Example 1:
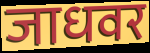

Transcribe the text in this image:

जाधवर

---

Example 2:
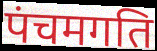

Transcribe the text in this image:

पंचमगति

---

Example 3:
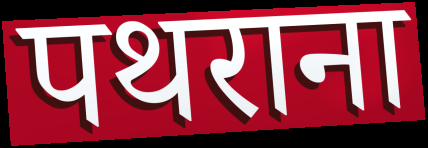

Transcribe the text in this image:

पथराना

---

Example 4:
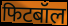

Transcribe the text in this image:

फिटबॉल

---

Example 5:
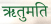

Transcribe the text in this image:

ऋतुमति